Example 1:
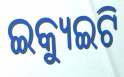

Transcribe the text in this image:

ଇକ୍ୟୁଇଟି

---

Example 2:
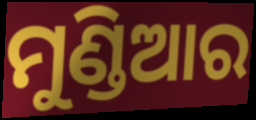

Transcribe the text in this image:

ମୁଣ୍ଡିଆର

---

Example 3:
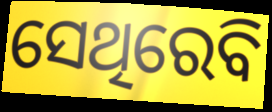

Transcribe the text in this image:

ସେଥିରେବି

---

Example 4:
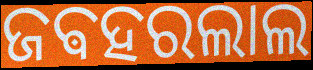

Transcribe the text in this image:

ଜଵହରଲାଲ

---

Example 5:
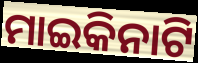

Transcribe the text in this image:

ମାଇକିନାଟି